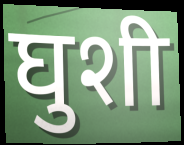
घुशी